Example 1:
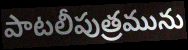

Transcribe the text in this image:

పాటలీపుత్రమును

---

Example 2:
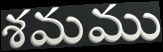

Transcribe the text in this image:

శమము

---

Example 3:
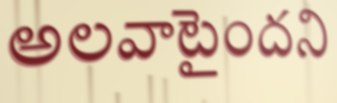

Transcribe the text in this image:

అలవాటైందని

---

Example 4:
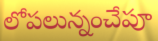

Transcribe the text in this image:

లోపలున్నంచేపూ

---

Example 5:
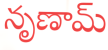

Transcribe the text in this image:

నృణామ్